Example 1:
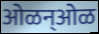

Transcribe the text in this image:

ओळन्ओळ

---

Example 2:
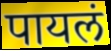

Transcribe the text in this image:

पायलं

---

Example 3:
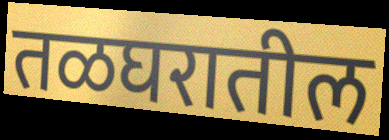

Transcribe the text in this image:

तळघरातील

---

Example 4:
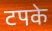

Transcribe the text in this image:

टपके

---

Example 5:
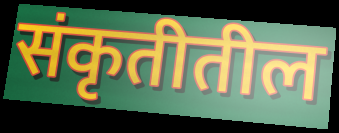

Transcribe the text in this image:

संकृतीतील